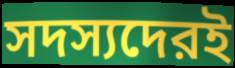
সদস্যদেরই